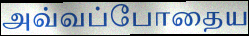
அவ்வப்போதைய